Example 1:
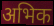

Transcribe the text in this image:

अभिक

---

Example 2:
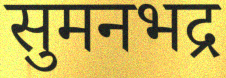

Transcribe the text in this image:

सुमनभद्र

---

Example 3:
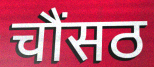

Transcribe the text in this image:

चौंसठ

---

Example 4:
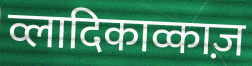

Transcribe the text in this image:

व्लादिकाव्काज़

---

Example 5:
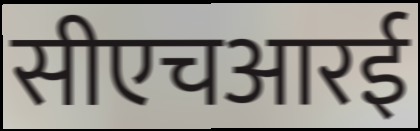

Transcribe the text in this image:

सीएचआरई